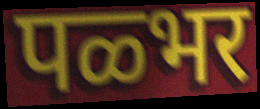
पळ्भर